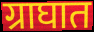
ग्राघात